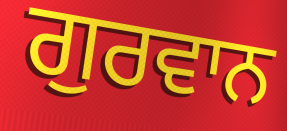
ਗੁਰਵਾਨ